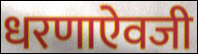
धरणाऐवजी